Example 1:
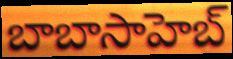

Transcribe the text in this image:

బాబాసాహెబ్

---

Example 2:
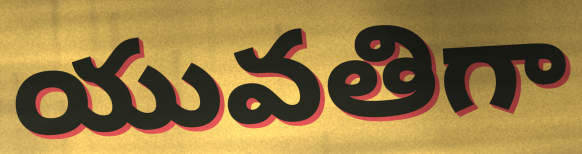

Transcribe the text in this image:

యువతిగా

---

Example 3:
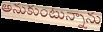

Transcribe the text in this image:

అనుకుంటున్నాను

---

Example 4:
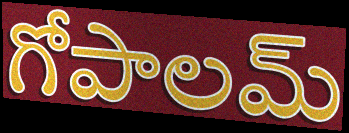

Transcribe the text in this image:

గోపాలమ్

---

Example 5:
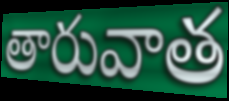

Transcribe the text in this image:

తారువాత